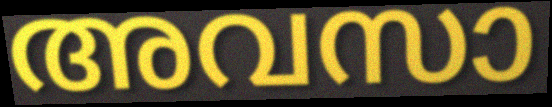
അവസാ